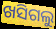
ଖସିଗଲୁ